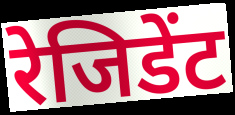
रेजिडेंट